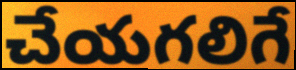
చేయగలిగే